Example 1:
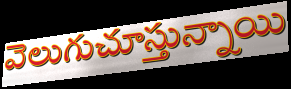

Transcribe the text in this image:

వెలుగుచూస్తున్నాయి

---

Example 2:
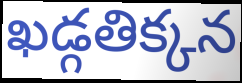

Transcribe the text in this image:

ఖడ్గతిక్కన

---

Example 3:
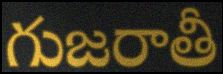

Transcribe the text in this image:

గుజరాతీ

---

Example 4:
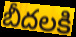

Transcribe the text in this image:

బీదలకి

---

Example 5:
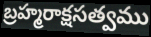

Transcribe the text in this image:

బ్రహ్మరాక్షసత్వము